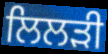
ਲਿਲੜੀ